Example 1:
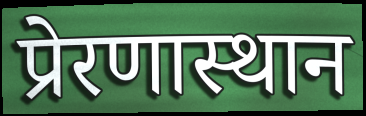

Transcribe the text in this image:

प्रेरणास्थान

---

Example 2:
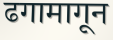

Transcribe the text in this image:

ढगामागून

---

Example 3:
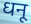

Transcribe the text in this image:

धनू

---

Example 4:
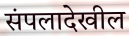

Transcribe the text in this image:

संपलादेखील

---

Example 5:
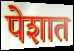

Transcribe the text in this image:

पेशात